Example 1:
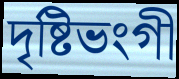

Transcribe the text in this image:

দৃষ্টিভংগী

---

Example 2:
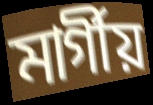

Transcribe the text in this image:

মার্গীয়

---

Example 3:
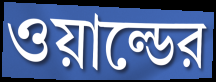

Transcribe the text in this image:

ওয়াল্ডের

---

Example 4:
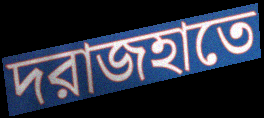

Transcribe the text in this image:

দরাজহাতে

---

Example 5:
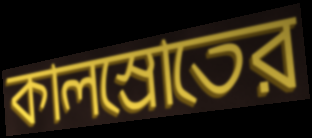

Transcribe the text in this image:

কালস্রোতের